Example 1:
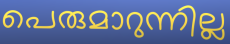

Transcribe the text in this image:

പെരുമാറുന്നില്ല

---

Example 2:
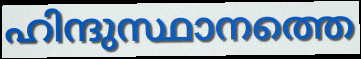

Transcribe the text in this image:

ഹിന്ദുസ്ഥാനത്തെ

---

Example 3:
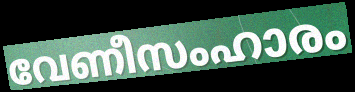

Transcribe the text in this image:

വേണീസംഹാരം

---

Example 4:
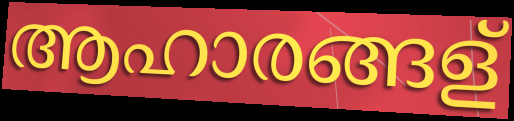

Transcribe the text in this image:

ആഹാരങ്ങള്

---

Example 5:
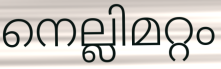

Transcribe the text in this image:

നെല്ലിമറ്റം